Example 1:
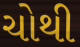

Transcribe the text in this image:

ચોથી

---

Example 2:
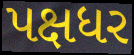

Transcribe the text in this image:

પક્ષધર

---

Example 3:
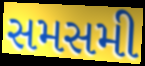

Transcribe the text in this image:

સમસમી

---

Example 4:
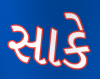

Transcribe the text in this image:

સાકે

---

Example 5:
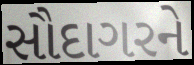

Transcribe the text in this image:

સૌદાગરને